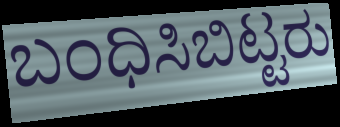
ಬಂಧಿಸಿಬಿಟ್ಟರು